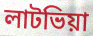
লাটভিয়া